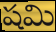
షమి